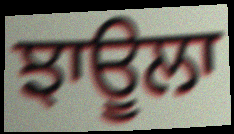
ਝਾਊਲਾ